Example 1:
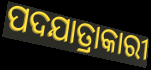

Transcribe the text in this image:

ପଦଯାତ୍ରାକାରୀ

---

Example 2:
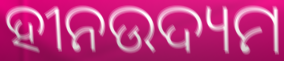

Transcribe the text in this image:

ହୀନଉଦ୍ୟମ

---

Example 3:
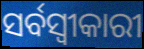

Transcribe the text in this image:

ସର୍ବସ୍ଵୀକାରୀ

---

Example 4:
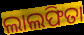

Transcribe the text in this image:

ଲାଲଫିତା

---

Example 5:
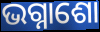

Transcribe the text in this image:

ଭଗ୍ନାଶୋ